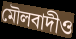
মৌলবাদীও